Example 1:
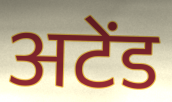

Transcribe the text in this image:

अटेंड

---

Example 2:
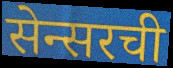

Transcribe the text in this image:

सेन्सरची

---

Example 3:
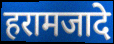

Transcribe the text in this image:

हरामजादे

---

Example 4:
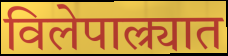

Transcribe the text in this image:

विलेपाल्र्यात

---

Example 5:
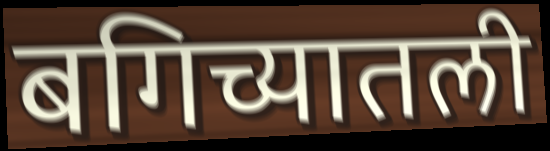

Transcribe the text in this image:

बगिच्यातली